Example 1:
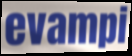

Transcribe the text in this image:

evampi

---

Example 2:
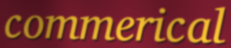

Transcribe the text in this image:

commerical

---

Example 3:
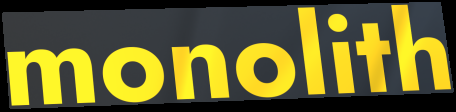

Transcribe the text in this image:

monolith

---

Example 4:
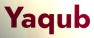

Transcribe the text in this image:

Yaqub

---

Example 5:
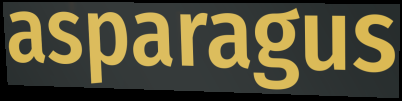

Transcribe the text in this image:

asparagus